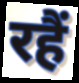
रहैं